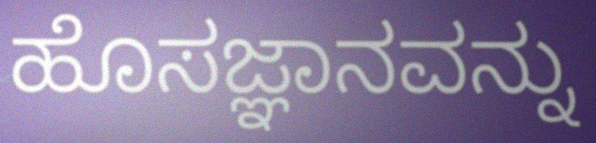
ಹೊಸಜ್ಞಾನವನ್ನು